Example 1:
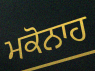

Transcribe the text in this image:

ਮਕੋਨਾਹ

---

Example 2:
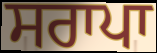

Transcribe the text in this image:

ਸਰਾਪਾ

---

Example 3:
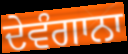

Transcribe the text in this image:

ਦੇਵੰਗਾਨਾ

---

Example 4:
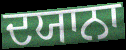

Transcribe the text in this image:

ਦਯਾਨਾ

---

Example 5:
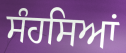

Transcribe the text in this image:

ਸੰਹਸਿਆਂ